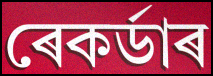
ৰেকৰ্ডাৰ